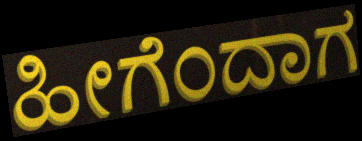
ಹೀಗೆಂದಾಗ